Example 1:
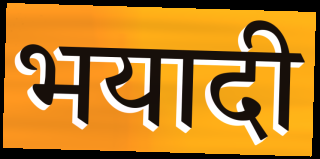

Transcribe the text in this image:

भयादी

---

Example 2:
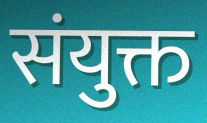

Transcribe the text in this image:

संयुक्त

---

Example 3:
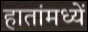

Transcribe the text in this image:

हातांमध्यें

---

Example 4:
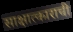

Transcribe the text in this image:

साक्षात्काराची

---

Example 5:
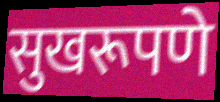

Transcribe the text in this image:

सुखरूपणे